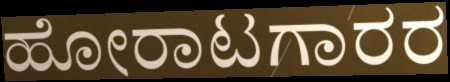
ಹೋರಾಟಗಾರರ